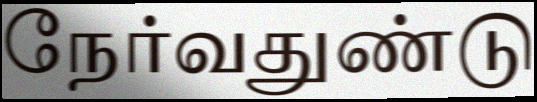
நேர்வதுண்டு